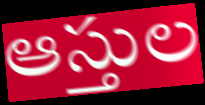
ఆస్తుల